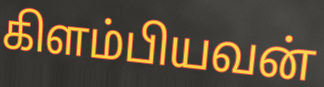
கிளம்பியவன்